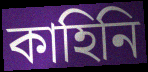
কাহিনি